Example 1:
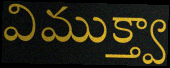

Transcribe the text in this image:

విముక్త్వా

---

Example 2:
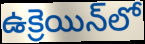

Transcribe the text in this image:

ఉక్రెయిన్‌లో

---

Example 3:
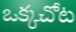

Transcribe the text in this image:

ఒక్కచోట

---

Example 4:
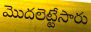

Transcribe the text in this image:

మొదలెట్టేసారు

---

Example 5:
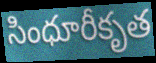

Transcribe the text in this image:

సింధూరీకృత